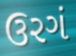
ઉરગં